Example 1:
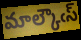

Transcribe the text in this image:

మాల్కౌఁస్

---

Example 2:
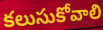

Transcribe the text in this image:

కలుసుకోవాలి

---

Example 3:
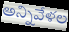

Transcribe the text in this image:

అన్నివేళల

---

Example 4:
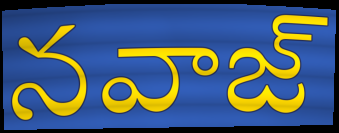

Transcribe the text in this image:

నవాజ్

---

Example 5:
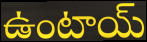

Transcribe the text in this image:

ఉంటాయ్